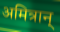
अमित्रान्